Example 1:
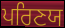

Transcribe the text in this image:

ਪਰਿਣਯ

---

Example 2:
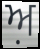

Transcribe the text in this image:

ਅ਼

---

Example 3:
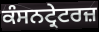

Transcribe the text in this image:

ਕੰਸਨਟ੍ਰੇਟਰਜ਼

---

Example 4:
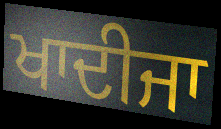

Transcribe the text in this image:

ਖਾਦੀਜਾ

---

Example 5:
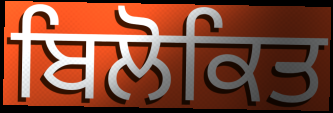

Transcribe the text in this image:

ਬਿਲੋਕਿਤ